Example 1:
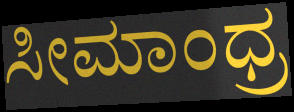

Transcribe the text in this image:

ಸೀಮಾಂಧ್ರ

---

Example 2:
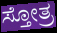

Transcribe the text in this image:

ಸ್ತೋತ್ರ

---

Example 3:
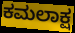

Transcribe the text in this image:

ಕಮಲಾಕ್ಷ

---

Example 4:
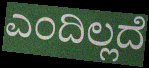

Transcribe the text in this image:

ಎಂದಿಲ್ಲದೆ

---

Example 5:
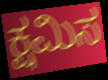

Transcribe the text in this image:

ಕ್ಷಮಿಸ